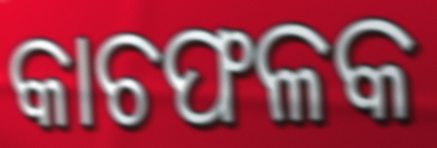
କାଚଫଳକ